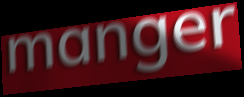
manger